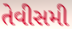
તેવીસમી